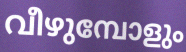
വീഴുമ്പോളും